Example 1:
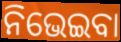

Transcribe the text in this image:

ନିଭେଇବା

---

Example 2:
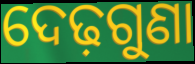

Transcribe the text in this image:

ଦେଢ଼ଗୁଣା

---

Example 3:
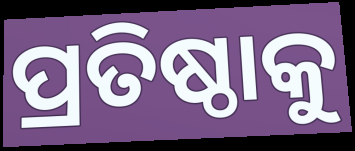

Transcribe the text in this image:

ପ୍ରତିଷ୍ଠାକୁ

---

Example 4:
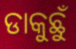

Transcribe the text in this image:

ଡାକୁଛୁଁ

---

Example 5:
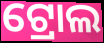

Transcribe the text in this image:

ଟ୍ରୋଲ